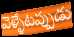
వెళ్ళేటప్పుడు